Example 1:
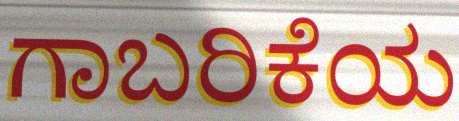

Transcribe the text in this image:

ಗಾಬರಿಕೆಯ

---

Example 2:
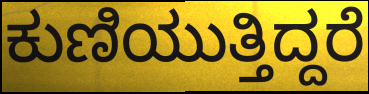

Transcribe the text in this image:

ಕುಣಿಯುತ್ತಿದ್ದರೆ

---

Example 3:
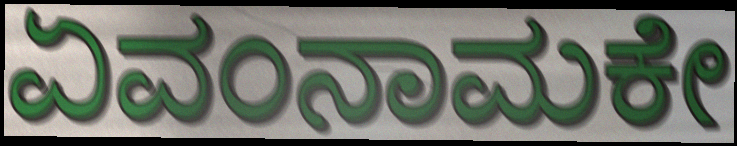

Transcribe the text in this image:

ಏವಂನಾಮಕೇ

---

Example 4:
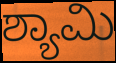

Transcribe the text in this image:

ಶ್ಯಾಮಿ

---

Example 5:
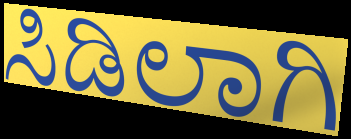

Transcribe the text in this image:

ಸಿಡಿಲಾಗಿ